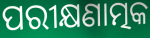
ପରୀକ୍ଷଣାତ୍ମକ